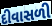
દીવાસળી